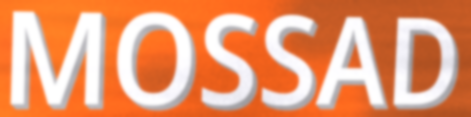
MOSSAD